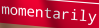
momentarily